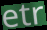
etr